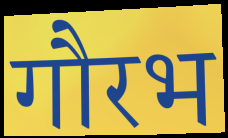
गौरभ